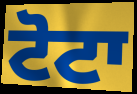
ਟੋਟਾ